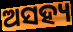
ଅସହ୍ୟ